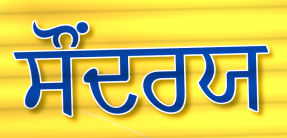
ਸੌਂਦਰਯ